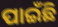
ପାଇଁଛି